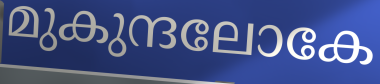
മുകുന്ദലോകേ